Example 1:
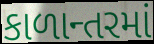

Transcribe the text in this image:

કાળાન્તરમાં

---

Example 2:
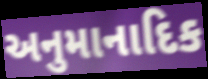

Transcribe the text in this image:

અનુમાનાદિક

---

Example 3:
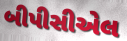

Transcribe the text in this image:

બીપીસીએલ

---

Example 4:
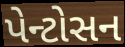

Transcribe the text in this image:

પેન્ટોસન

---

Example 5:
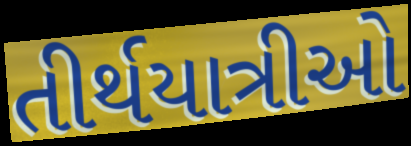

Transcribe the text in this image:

તીર્થયાત્રીઓ